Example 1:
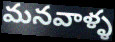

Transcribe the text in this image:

మనవాళ్ళ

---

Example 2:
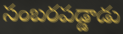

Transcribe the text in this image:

సంబరపడ్డాడు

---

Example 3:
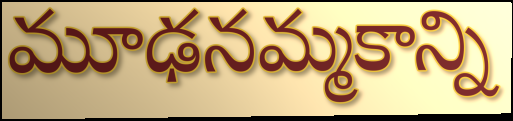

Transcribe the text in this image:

మూఢనమ్మకాన్ని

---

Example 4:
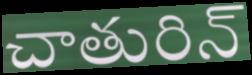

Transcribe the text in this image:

చాతురిన్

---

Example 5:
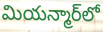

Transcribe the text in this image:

మియన్మార్‌లో